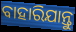
ବାହାରିଯାନ୍ତୁ